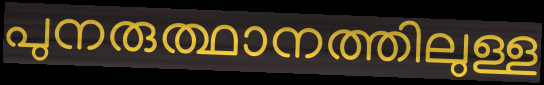
പുനരുത്ഥാനത്തിലുള്ള